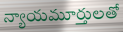
న్యాయమూర్తులతో